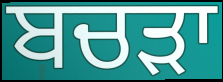
ਬਚੜਾ